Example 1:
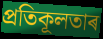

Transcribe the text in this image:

প্ৰতিকূলতাৰ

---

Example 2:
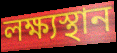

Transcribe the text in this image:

লক্ষ্যস্থান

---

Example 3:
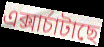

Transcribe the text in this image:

এক্সাৰ্চাটাছে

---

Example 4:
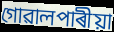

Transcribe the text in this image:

গোৱালপাৰীয়া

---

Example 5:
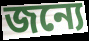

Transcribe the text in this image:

জন্যে